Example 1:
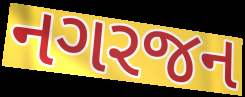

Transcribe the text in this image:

નગરજન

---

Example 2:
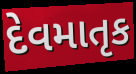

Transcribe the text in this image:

દેવમાતૃક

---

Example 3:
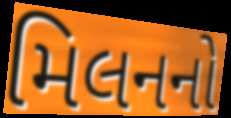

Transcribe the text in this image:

મિલનનો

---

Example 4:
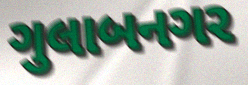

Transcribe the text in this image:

ગુલાબનગર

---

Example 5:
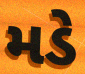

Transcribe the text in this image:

મડે